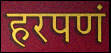
हरपणं